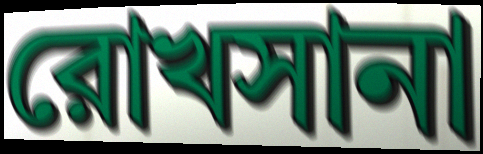
রোখসানা